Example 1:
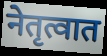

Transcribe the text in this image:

नेतृत्वात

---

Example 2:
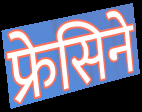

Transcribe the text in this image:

फ्रेसिने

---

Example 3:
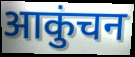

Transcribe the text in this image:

आकुंचन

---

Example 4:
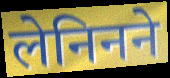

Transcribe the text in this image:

लेनिनने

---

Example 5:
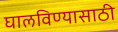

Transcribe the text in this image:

घालविण्यासाठी